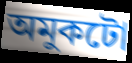
অমুকটো